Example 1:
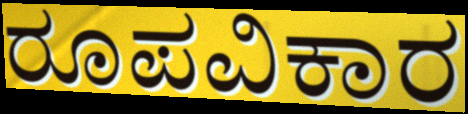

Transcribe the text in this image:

ರೂಪವಿಕಾರ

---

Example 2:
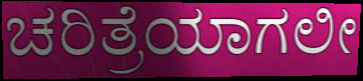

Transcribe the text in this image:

ಚರಿತ್ರೆಯಾಗಲೀ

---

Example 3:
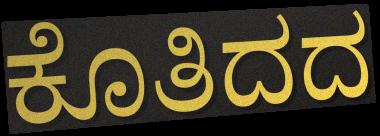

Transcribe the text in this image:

ಕೊತಿದದ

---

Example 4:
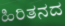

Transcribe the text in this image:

ಹಿರಿತನದ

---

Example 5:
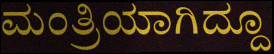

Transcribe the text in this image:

ಮಂತ್ರಿಯಾಗಿದ್ದೂ